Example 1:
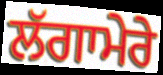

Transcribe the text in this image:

ਲੱਗਾਮੇਰੇ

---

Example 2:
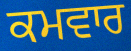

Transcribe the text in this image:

ਕਮਵਾਰ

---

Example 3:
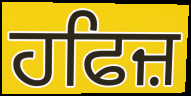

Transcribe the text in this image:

ਹਫਿਜ਼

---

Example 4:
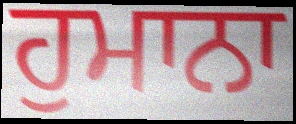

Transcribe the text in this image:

ਹੁਮਾਨਾ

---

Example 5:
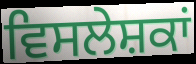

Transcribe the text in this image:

ਵਿਸਲੇਸ਼ਕਾਂ